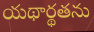
యథార్థతను